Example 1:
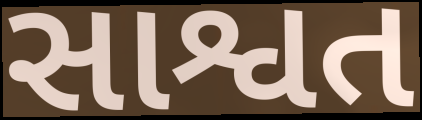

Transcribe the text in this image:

સાશ્વત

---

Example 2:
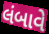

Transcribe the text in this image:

લંબાવે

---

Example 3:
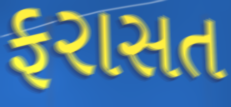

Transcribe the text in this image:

ફરાસત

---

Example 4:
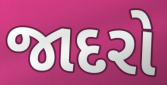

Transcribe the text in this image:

જાદરો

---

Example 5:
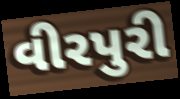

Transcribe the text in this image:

વીરપુરી